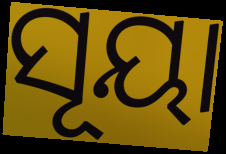
ସୂୟା